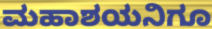
ಮಹಾಶಯನಿಗೂ